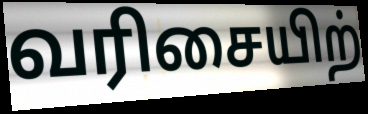
வரிசையிற்